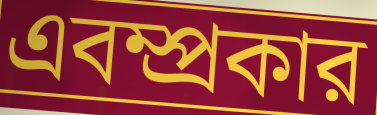
এবম্প্রকার